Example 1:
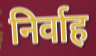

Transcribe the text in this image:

निर्वाह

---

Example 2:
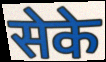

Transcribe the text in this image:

सेके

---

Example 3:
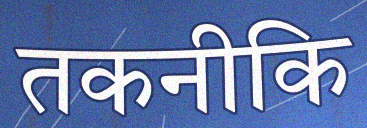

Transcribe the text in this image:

तकनीकि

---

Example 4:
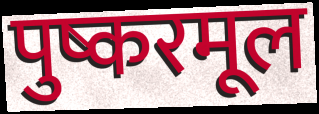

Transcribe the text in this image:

पुष्करमूल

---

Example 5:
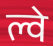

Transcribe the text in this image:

ल्वे